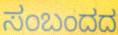
ಸಂಬಂದದ